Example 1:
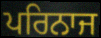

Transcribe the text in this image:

ਪਰਿਨਾਜ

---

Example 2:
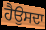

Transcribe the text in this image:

ਹੈਉਸਦਾ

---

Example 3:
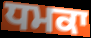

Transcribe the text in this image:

ਧਮਕਾ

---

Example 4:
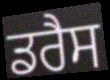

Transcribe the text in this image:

ਡਰੈਸ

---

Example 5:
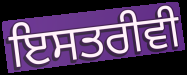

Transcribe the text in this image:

ਇਸਤਰੀਵੀ